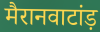
मैरानवाटांड़